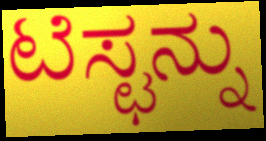
ಟೆಸ್ಟನ್ನು